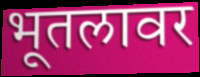
भूतलावर